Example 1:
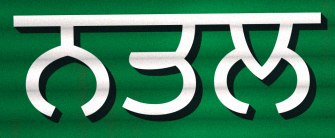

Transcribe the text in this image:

ਨਤਲ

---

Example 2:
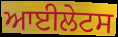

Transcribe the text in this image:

ਆਈਲੇਟਸ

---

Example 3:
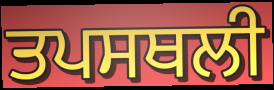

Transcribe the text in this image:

ਤਪਸਥਲੀ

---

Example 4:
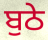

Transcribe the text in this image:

ਬੁਠੇ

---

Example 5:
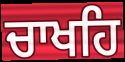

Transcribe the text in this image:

ਚਾਖਹਿ